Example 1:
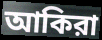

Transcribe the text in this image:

আকিরা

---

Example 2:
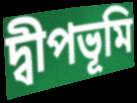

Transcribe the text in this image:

দ্বীপভূমি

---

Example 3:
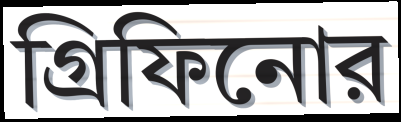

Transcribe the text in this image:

গ্রিফিনোর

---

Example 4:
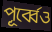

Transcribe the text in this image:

পূর্ব্বেও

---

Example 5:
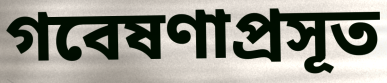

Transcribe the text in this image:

গবেষণাপ্রসূত